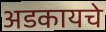
अडकायचे